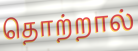
தொற்றால்